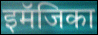
इमॅजिका